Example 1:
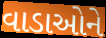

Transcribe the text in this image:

વાડાઓને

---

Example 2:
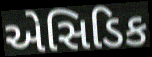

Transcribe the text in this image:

એસિડિક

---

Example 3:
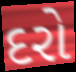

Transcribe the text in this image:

દરો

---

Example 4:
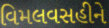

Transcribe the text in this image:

વિમલવસહીને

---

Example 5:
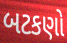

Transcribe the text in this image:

બટકણો